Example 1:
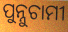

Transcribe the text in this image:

ପୁନ୍ନୁଚାମୀ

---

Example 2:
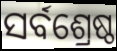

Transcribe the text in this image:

ସର୍ବଶ୍ରେଷ୍ଠ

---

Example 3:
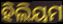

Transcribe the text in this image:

ହିଲିୟମ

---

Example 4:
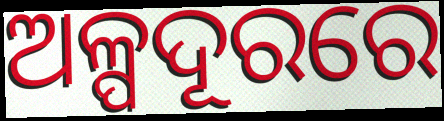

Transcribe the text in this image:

ଅଳ୍ପଦୂରରେ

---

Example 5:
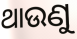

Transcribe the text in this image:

ଥାଉଣୁ